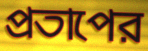
প্রতাপের